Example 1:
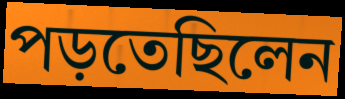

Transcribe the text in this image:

পড়তেছিলেন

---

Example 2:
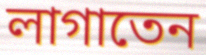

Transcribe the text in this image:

লাগাতেন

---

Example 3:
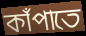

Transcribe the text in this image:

কাঁপাতে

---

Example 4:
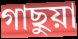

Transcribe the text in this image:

গাছুয়া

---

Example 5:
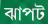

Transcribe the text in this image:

ঝাপট